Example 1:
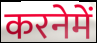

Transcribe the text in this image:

करनेमें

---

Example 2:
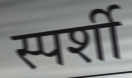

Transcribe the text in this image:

स्पर्शी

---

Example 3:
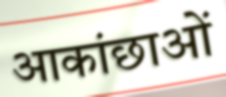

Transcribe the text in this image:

आकांछाओं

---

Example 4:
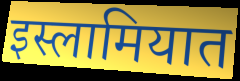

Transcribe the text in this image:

इस्लामियात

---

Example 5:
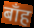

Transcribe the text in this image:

बाँह